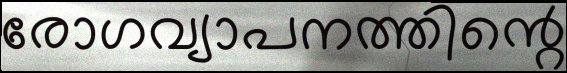
രോഗവ്യാപനത്തിന്റെ